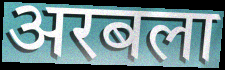
अरबला